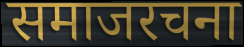
समाजरचना